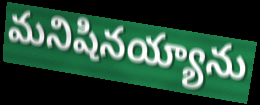
మనిషినయ్యాను